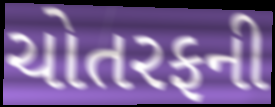
ચોતરફની